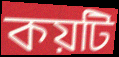
কয়টি